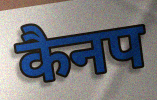
कैनप